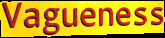
Vagueness